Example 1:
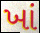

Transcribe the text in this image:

ખાં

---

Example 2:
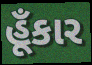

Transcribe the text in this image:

હૂઁકાર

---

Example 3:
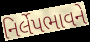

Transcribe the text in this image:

નિર્લેપભાવને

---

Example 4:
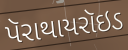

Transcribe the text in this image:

પૅરાથાયરૉઇડ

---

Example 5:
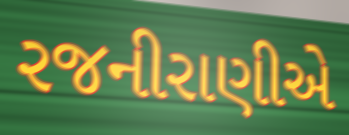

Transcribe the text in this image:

રજનીરાણીએ